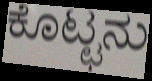
ಕೊಟ್ಟನು